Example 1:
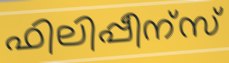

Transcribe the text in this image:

ഫിലിപ്പീന്സ്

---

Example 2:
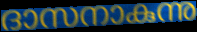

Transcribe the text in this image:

ദാസനാകുന്നു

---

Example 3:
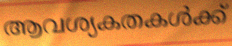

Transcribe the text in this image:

ആവശ്യകതകൾക്ക്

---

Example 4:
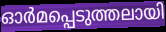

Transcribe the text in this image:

ഓർമപ്പെടുത്തലായി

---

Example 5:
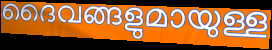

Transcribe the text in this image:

ദൈവങ്ങളുമായുള്ള